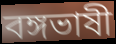
বঙ্গভাষী